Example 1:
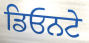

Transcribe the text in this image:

ਡਿਓਨਟੇ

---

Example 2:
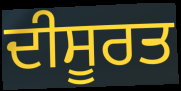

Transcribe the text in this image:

ਦੀਸੂਰਤ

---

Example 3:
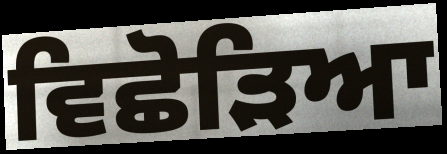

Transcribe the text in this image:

ਵਿਛੋੜਿਆ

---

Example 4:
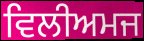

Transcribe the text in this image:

ਵਿਲੀਅਮਜ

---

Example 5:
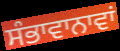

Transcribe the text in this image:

ਸੰਭਾਵਾਨਾਵਾਂ